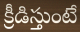
క్రీడిస్తుంటే